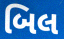
બિલ